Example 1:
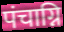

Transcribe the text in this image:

पंचाग्नि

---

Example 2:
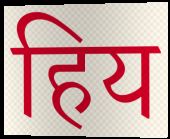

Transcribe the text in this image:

हिय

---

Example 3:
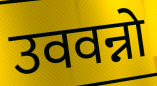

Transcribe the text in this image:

उववन्नो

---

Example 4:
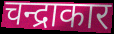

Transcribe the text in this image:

चन्द्राकार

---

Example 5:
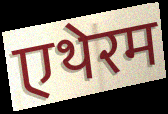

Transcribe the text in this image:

एथेरम